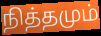
நித்தமும்